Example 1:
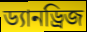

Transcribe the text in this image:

ড্যানড্রিজ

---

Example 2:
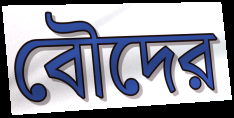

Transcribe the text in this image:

বৌদের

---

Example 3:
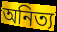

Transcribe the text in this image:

অনিত্য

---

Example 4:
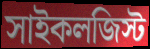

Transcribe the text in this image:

সাইকলজিস্ট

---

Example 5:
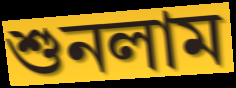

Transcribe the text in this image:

শুনলাম